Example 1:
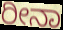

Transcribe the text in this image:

ರೀನಾ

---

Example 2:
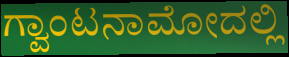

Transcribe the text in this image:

ಗ್ವಾಂಟನಾಮೋದಲ್ಲಿ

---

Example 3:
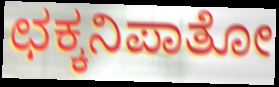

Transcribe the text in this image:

ಛಕ್ಕನಿಪಾತೋ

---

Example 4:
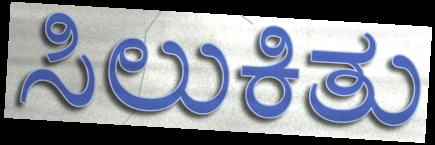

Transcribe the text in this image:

ಸಿಲುಕಿತು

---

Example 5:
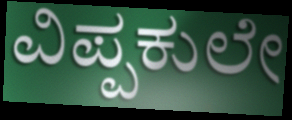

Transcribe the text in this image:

ವಿಪ್ಪಕುಲೇ